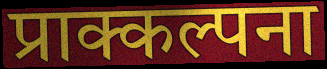
प्राक्कल्पना